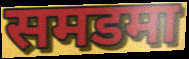
समडमा